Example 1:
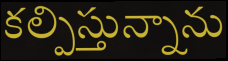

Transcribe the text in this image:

కల్పిస్తున్నాను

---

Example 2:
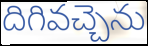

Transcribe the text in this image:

దిగివచ్చెను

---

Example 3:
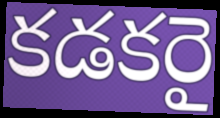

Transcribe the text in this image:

కడకరై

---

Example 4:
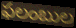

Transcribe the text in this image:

ఫలంబుల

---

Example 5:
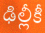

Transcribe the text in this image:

ఢిల్లీకీ